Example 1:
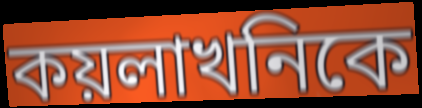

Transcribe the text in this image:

কয়লাখনিকে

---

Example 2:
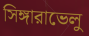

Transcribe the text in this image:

সিঙ্গারাভেলু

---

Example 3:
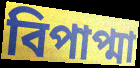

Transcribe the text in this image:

বিপাপ্মা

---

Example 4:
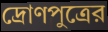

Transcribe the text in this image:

দ্রোণপুত্রের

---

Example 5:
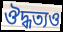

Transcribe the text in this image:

ঔদ্ধত্যও